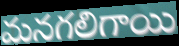
మనగలిగాయి